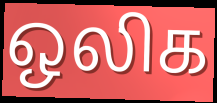
ஒலிக